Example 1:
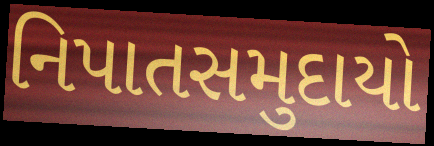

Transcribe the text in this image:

નિપાતસમુદાયો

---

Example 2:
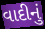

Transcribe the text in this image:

વાદીનું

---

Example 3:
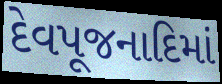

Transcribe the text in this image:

દેવપૂજનાદિમાં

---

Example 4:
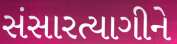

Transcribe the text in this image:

સંસારત્યાગીને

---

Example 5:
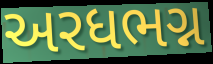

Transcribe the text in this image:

અરધભગ્ન